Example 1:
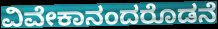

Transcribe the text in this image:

ವಿವೇಕಾನಂದರೊಡನೆ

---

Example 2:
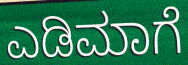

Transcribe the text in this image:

ಎಡಿಮಾಗೆ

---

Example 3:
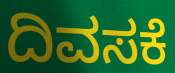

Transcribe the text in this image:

ದಿವಸಕೆ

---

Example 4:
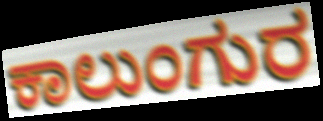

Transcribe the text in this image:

ಕಾಲುಂಗುರ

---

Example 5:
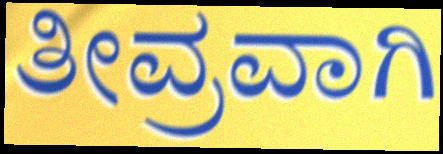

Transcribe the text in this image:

ತೀವ್ರವಾಗಿ